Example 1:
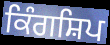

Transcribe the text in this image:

ਕਿੰਗਸ਼ਿਪ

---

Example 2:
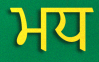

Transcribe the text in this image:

ਮਧ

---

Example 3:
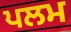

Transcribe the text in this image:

ਪਲਮ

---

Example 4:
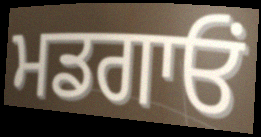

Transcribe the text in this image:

ਮਡਗਾਓਂ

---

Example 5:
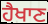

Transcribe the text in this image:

ਹੈਖਾਣ